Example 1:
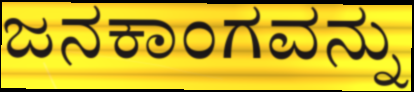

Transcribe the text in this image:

ಜನಕಾಂಗವನ್ನು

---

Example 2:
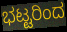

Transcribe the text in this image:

ಭಟ್ಟರಿಂದ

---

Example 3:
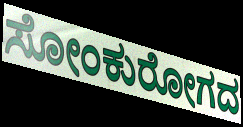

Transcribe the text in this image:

ಸೋಂಕುರೋಗದ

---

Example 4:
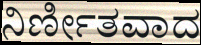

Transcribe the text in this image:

ನಿರ್ಣೀತವಾದ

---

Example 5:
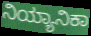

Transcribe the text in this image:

ನಿಯ್ಯಾನಿಕಾ